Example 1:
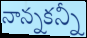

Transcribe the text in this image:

నాన్నకన్నీ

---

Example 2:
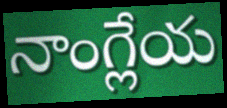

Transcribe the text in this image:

నాంగ్లేయ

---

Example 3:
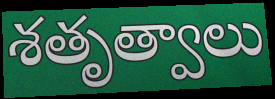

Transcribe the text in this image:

శతృత్వాలు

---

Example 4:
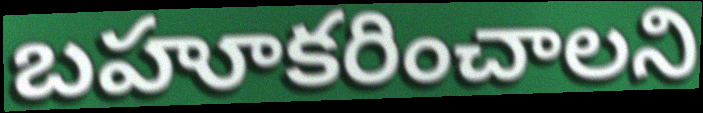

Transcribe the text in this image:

బహూకరించాలని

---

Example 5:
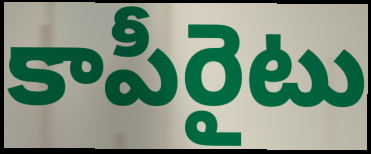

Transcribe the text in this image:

కాపీరైటు